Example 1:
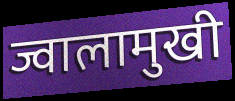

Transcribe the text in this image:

ज्‍वालामुखी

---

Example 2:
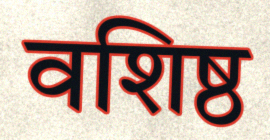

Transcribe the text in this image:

वशिष्ठ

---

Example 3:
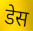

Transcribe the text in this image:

डेस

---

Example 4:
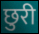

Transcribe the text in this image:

छुरी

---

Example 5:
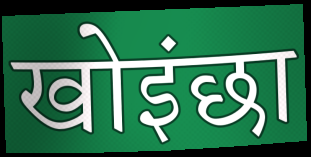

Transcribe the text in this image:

खोइंछा